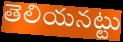
తెలియనట్టు